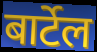
बार्टेल